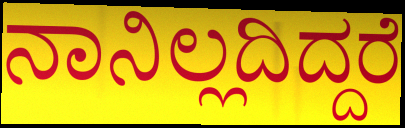
ನಾನಿಲ್ಲದಿದ್ದರೆ